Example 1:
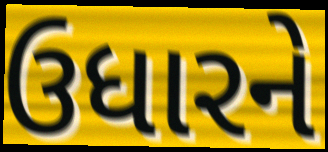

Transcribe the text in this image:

ઉધારને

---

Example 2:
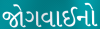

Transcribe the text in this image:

જોગવાઈનો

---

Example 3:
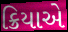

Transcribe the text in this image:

ક્રિયાએ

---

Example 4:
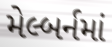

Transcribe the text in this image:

મેલ્બર્નમાં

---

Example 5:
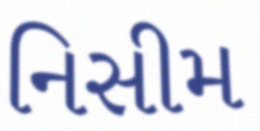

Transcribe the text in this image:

નિસીમ